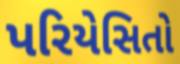
પરિયેસિતો